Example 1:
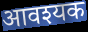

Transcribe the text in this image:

आवश्यक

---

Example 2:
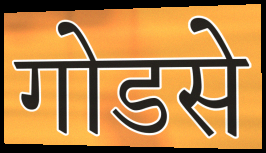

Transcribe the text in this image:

गोडसे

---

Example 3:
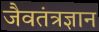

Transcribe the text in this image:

जैवतंत्रज्ञान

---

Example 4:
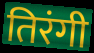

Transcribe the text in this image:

तिरंगी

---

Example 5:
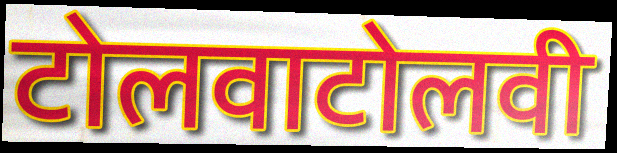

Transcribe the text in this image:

टोलवाटोलवी